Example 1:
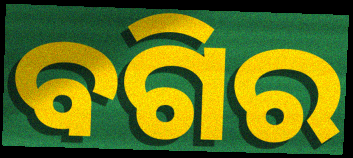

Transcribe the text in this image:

ବଗିର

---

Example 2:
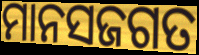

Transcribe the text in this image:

ମାନସଜଗତ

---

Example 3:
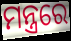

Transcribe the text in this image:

ମନ୍ତ୍ରରେ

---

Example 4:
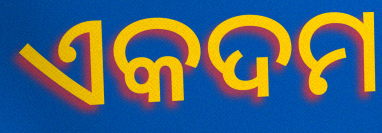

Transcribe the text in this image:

ଏକଦମ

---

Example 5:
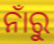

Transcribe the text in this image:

ନାଁରୁ